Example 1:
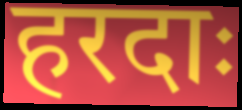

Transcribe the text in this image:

हरदाः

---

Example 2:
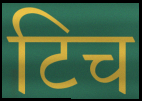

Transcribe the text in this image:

टिच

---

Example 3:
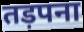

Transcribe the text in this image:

तड़पना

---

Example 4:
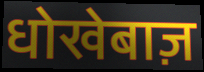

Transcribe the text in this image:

धोखेबाज़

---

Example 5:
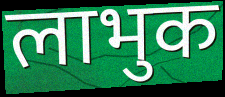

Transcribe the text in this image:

लाभुक